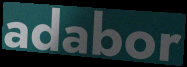
adabor